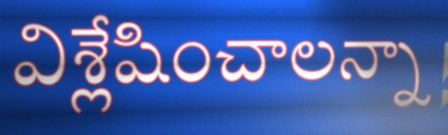
విశ్లేషించాలన్నా